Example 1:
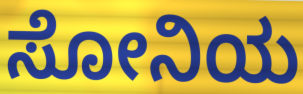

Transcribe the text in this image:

ಸೋನಿಯ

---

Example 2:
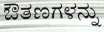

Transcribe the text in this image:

ಔತಣಗಳನ್ನು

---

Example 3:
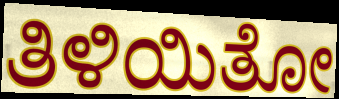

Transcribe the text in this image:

ತಿಳಿಯಿತೋ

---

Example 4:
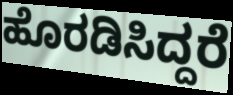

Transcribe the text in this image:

ಹೊರಡಿಸಿದ್ದರೆ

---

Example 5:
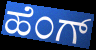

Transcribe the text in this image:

ಹೆಂಗ್